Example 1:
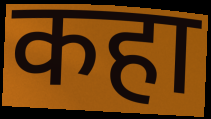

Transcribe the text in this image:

कहा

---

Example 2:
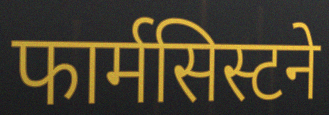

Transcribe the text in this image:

फार्मसिस्टने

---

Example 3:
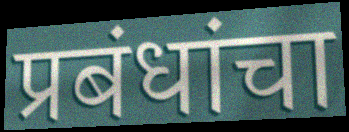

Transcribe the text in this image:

प्रबंधांचा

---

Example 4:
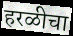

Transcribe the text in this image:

हरळीचा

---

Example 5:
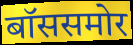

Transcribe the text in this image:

बॉससमोर